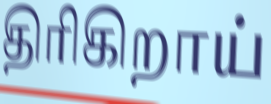
திரிகிறாய்